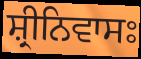
ਸ਼੍ਰੀਨਿਵਾਸਃ